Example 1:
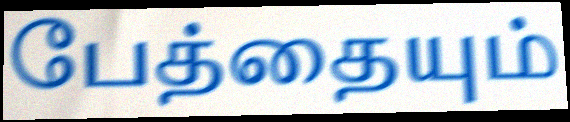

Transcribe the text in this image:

பேத்தையும்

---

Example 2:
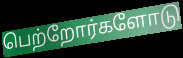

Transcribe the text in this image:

பெற்றோர்களோடு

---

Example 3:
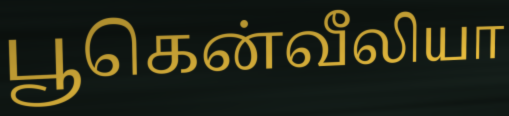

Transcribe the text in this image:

பூகென்வீலியா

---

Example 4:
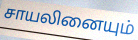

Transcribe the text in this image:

சாயலினையும்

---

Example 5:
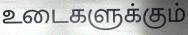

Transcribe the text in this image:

உடைகளுக்கும்